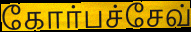
கோர்பச்சேவ்